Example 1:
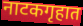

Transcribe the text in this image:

नाटकगृहात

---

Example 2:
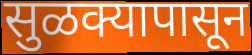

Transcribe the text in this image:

सुळक्यापासून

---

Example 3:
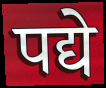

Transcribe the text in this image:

पद्ये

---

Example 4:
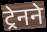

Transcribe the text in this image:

ट्रेनने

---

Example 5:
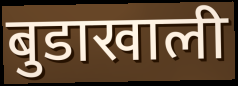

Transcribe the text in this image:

बुडाखाली